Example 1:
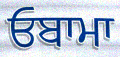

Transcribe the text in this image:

ਓਬਾਮਾ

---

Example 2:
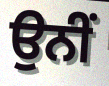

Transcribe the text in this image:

ਉਨੀਂ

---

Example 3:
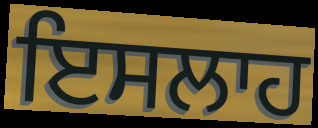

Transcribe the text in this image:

ਇਸਲਾਹ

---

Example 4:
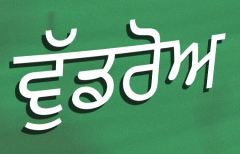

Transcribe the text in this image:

ਵੁੱਡਰੋਅ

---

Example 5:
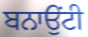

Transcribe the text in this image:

ਬਨਾਉਂਟੀ